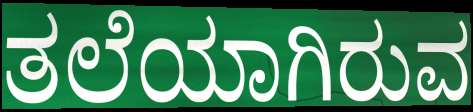
ತಲೆಯಾಗಿರುವ